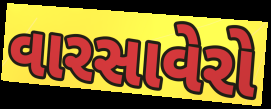
વારસાવેરો